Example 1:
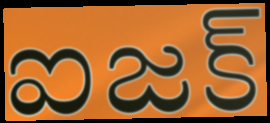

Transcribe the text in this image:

ఐజక్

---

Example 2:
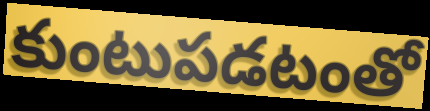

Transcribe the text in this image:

కుంటుపడటంతో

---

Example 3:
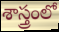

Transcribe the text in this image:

శాస్త్రంలో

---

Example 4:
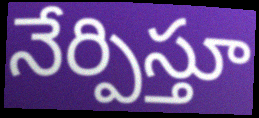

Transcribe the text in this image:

నేర్పిస్తూ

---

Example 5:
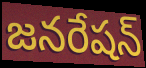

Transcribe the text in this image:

జనరేషన్